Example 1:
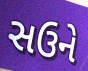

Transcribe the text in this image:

સઉને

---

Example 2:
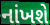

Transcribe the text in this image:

નાંખશે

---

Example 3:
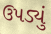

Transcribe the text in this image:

ઉપડ્યું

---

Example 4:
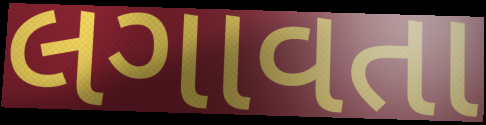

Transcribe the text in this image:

લગાવતા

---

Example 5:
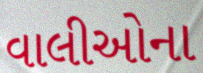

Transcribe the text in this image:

વાલીઓના